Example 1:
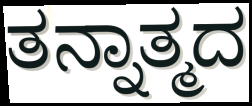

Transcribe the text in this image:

ತನ್ನಾತ್ಮದ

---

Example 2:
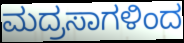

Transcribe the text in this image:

ಮದ್ರಸಾಗಳಿಂದ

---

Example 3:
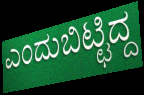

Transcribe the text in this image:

ಎಂದುಬಿಟ್ಟಿದ್ದ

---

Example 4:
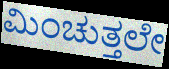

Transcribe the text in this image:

ಮಿಂಚುತ್ತಲೇ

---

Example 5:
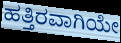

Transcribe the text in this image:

ಹತ್ತಿರವಾಗಿಯೇ